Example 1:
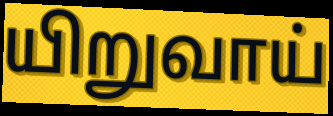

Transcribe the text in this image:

யிறுவாய்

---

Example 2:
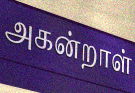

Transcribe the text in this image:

அகன்றாள்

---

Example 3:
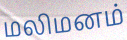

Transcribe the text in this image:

மலிமனம்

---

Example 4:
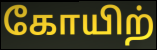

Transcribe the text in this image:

கோயிற்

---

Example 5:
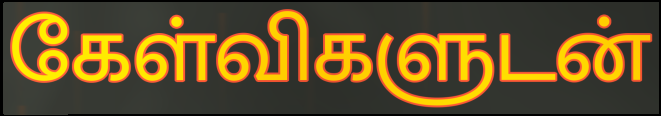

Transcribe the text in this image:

கேள்விகளுடன்